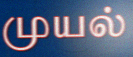
முயல்